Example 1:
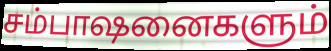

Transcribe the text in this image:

சம்பாஷனைகளும்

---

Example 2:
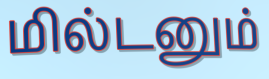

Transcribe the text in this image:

மில்டனும்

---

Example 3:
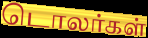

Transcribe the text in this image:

டொலர்கள்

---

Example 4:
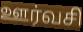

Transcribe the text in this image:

ஊர்வசி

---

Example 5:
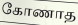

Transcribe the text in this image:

கோணாத